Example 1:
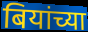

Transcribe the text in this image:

बियांच्या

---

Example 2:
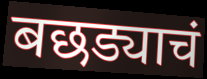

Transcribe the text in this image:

बछड्याचं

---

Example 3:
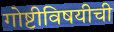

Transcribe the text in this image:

गोष्टीविषयीची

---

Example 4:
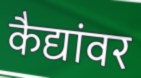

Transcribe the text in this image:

कैद्यांवर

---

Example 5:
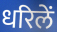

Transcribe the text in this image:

धरिलें